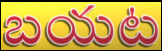
బయట